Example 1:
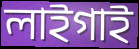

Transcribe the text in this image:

লাইগাই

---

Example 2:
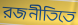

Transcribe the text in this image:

রজনীতিতে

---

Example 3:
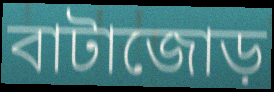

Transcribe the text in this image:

বাটাজোড়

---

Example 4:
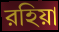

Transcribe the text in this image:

রহিয়া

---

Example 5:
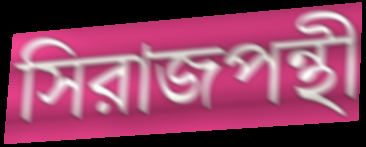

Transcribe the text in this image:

সিরাজপন্থী